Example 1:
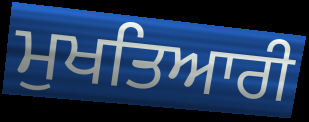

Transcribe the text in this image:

ਮੁਖਤਿਆਰੀ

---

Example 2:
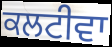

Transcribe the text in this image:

ਕਲਟੀਵਾ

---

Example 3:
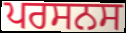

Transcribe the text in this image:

ਪਰਸਨਸ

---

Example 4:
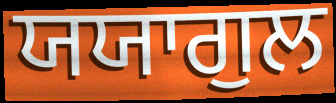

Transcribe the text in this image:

ਯਯਾਗੁਲ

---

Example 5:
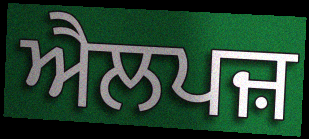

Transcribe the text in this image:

ਐਲਪਜ਼